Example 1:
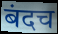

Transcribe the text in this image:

बंदच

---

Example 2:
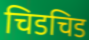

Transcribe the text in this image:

चिडचिड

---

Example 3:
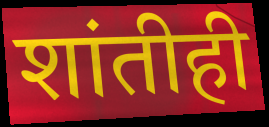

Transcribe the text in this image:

शांतीही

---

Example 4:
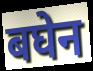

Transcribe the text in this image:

बघेन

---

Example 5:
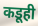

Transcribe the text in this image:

कडूही